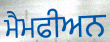
ਮੈਮਫੀਅਨ